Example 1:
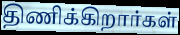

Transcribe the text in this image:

திணிக்கிறார்கள்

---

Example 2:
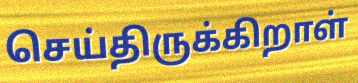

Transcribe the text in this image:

செய்திருக்கிறாள்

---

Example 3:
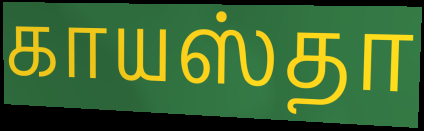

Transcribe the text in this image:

காயஸ்தா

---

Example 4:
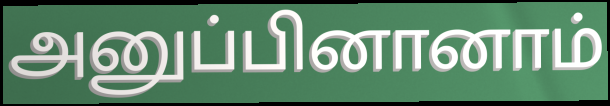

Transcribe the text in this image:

அனுப்பினானாம்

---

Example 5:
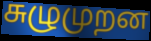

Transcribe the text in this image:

சுழுமுறன